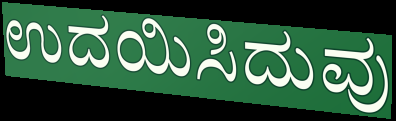
ಉದಯಿಸಿದುವು